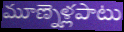
మూణ్నెళ్లపాటు